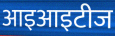
आइआइटीज